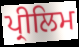
ਪ੍ਰੀਲਿਮ